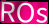
ROs